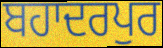
ਬਹਾਦਰਪੁਰ